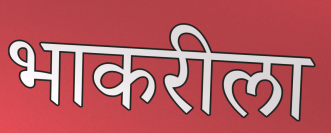
भाकरीला